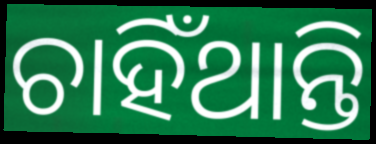
ଚାହିଁଥାନ୍ତି